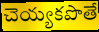
చెయ్యకపొతే